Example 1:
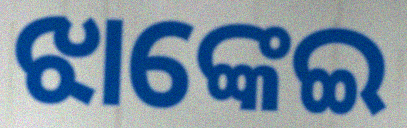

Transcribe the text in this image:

ଝାଙ୍କେଇ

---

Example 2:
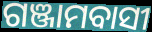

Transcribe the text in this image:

ଗଞ୍ଜାମବାସୀ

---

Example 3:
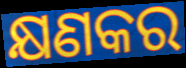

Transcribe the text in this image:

କ୍ଷଣକର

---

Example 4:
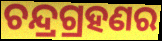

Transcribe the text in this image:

ଚନ୍ଦ୍ରଗ୍ରହଣର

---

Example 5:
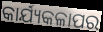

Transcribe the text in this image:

କାର୍ଯ୍ୟକଳାପର